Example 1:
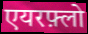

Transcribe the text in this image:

एयरफ़्लो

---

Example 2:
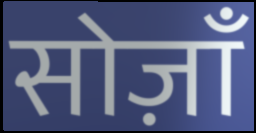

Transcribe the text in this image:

सोज़ाँ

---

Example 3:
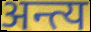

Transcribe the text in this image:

अन्त्य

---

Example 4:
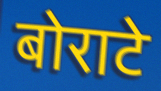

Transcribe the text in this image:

बोराटे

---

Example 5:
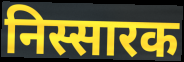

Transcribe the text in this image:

निस्सारक